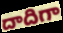
దాదిగా